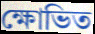
ক্ষোভিত